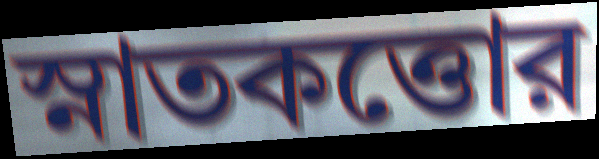
স্নাতকত্তোর